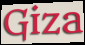
Giza